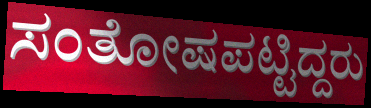
ಸಂತೋಷಪಟ್ಟಿದ್ದರು